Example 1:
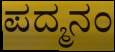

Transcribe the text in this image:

ಪದ್ಮನಂ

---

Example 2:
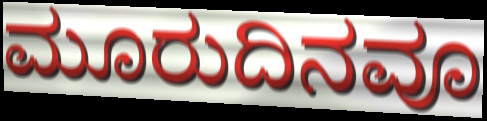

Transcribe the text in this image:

ಮೂರುದಿನವೂ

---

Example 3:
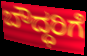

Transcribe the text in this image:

ಬೌದ್ಧರಿಗೆ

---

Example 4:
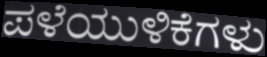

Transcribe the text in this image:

ಪಳೆಯುಳಿಕೆಗಳು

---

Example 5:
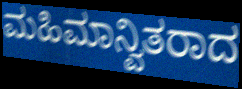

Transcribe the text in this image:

ಮಹಿಮಾನ್ವಿತರಾದ